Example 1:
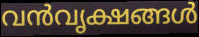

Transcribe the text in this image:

വൻവൃക്ഷങ്ങൾ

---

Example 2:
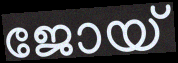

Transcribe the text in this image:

ജോയ്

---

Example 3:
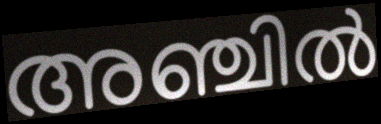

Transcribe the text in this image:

അഞ്ചിൽ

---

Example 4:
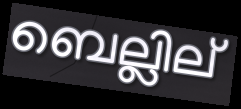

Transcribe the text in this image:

ബെല്ലില്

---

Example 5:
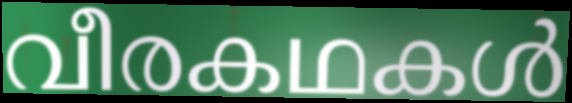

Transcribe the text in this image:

വീരകഥകൾ